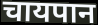
चायपान